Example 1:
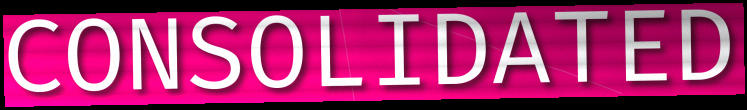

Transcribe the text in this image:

CONSOLIDATED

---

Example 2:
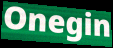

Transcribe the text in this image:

Onegin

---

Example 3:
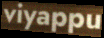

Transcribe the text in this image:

viyappu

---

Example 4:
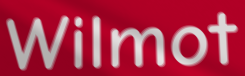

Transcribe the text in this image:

Wilmot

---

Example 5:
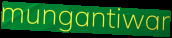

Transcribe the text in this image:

mungantiwar